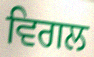
ਵਿਗਲ